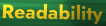
Readability